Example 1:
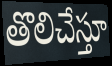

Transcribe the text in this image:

తొలిచేస్తూ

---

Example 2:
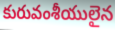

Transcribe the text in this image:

కురువంశీయులైన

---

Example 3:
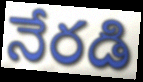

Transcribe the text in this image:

నేరడి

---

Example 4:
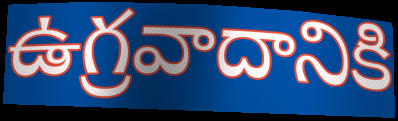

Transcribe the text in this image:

ఉగ్రవాదానికి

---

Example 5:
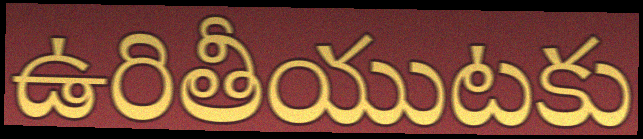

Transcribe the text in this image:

ఉరితీయుటకు